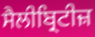
ਸੈਲੀਬ੍ਰਿਟੀਜ਼